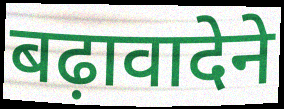
बढ़ावादेने